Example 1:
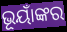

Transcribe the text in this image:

ଭୂୟାଁଙ୍କର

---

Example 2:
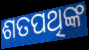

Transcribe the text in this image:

ଶତପଥିଙ୍କ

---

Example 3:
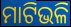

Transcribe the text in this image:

ମାଟିଭଳି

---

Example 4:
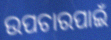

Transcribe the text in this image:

ଉପଚାରପାଇଁ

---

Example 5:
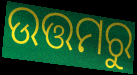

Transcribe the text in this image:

ଉତ୍ତମରୁ